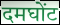
दमघोंट